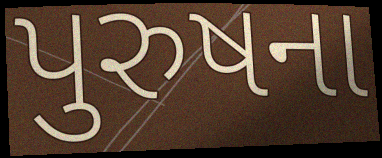
પુરુષના